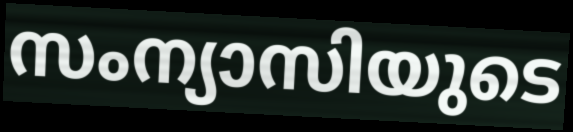
സംന്യാസിയുടെ